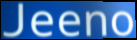
Jeeno